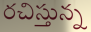
రచిస్తున్న